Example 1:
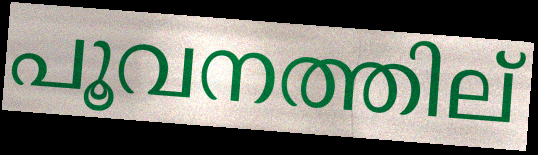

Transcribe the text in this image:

പൂവനത്തില്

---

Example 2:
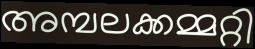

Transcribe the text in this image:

അമ്പലക്കമ്മറ്റി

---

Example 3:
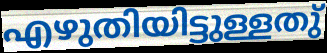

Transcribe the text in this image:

എഴുതിയിട്ടുള്ളതു്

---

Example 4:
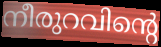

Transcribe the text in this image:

നീരുറവിന്റെ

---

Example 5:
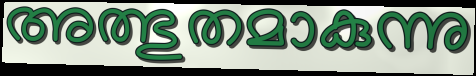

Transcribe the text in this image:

അത്ഭുതമാകുന്നു